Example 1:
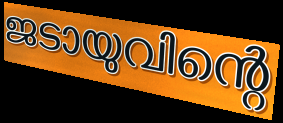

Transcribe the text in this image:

ജടായുവിന്റെ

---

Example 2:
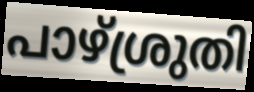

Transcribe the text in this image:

പാഴ്ശ്രുതി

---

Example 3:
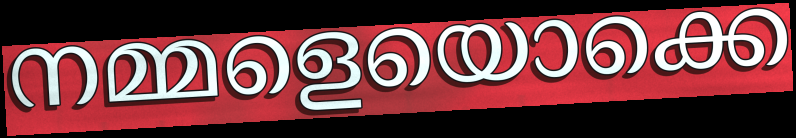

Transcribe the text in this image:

നമ്മളെയൊക്കെ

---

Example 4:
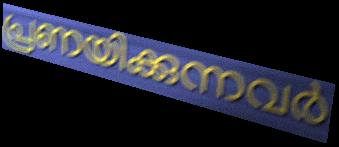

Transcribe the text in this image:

പ്രണയിക്കുന്നവർ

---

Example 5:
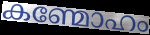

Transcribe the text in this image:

കണ്മോഹം